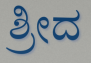
ಶ್ರೀದ